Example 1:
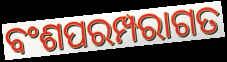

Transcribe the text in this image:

ବଂଶପରମ୍ପରାଗତ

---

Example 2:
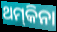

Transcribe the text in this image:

ଥମ୍‍କିନା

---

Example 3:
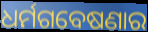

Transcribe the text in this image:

ଧର୍ମଗବେଷଣାର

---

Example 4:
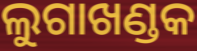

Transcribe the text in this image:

ଲୁଗାଖଣ୍ଡକ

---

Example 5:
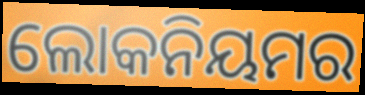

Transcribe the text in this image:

ଲୋକନିୟମର